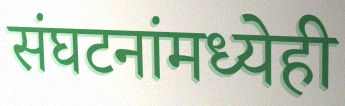
संघटनांमध्येही